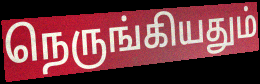
நெருங்கியதும்